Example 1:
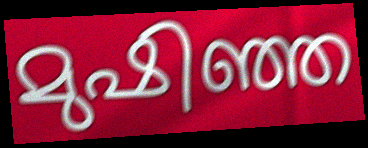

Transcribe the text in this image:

മുഷിഞ്ഞ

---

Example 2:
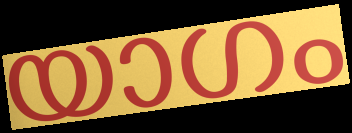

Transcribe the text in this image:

യാഗം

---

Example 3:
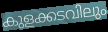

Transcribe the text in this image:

കുളക്കടവിലും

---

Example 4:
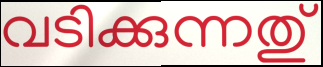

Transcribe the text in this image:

വടിക്കുന്നതു്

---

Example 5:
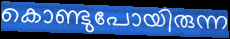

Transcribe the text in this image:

കൊണ്ടുപോയിരുന്ന